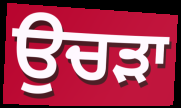
ਉਚੜਾ